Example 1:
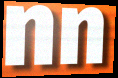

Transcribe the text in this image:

nn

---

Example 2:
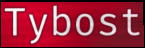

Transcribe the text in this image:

Tybost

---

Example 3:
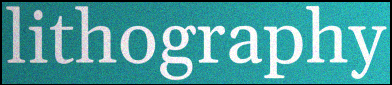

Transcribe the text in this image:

lithography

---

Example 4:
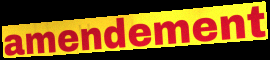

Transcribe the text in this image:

amendement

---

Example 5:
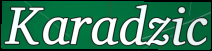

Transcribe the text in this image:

Karadzic